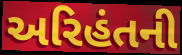
અરિહંતની